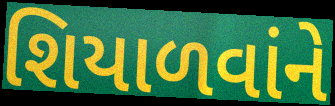
શિયાળવાંને